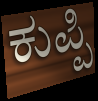
ಕುಪ್ಪಿ